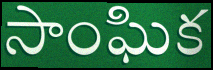
సాంఘిక